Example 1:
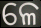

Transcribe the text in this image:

ଳେ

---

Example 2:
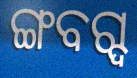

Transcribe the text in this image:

ଙ୍ଗବଗ୍ଦ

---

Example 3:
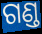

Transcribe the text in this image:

ଗଣ୍ଡ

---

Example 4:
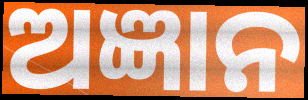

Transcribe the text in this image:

ଅଜ୍ଞାନ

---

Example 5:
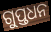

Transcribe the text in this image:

ଗୁପ୍ତଧନ